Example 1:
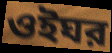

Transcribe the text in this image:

ওইঘর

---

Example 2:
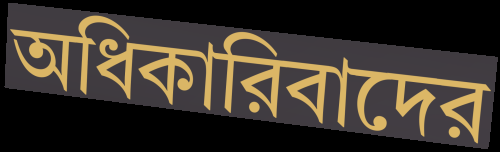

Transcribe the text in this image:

অধিকারিবাদের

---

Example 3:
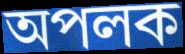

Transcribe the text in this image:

অপলক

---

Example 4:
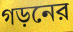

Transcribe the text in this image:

গড়নের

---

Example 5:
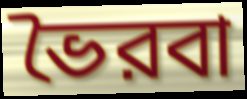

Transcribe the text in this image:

ভৈরবা